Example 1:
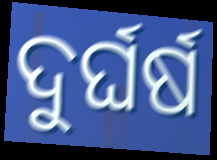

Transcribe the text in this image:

ଦୁର୍ଘର୍ଷ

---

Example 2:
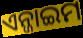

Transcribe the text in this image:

ଏନ୍ଜାଇମ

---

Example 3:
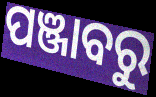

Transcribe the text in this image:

ପଞ୍ଜାବରୁ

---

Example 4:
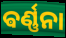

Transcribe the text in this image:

ଵର୍ଣ୍ଣନା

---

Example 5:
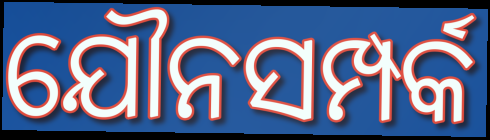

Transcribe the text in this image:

ଯୌନସମ୍ପର୍କ